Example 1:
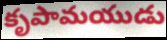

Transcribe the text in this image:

కృపామయుడు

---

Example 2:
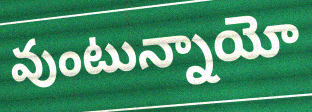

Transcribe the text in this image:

వుంటున్నాయో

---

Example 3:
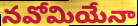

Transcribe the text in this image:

నవోమియేనా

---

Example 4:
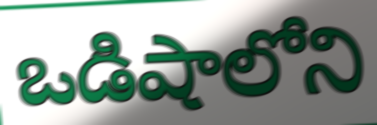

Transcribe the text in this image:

ఒడిషాలోని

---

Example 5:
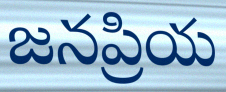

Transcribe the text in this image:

జనప్రియ